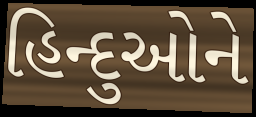
હિન્દુઓને